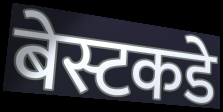
बेस्टकडे